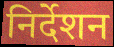
निर्देशन